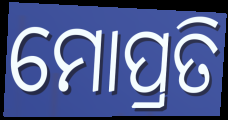
ମୋପ୍ରତି